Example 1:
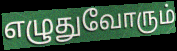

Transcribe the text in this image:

எழுதுவோரும்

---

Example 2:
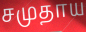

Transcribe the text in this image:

சமுதாய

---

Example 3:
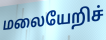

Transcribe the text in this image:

மலையேறிச்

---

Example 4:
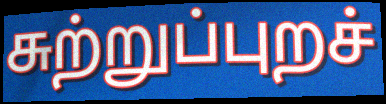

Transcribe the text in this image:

சுற்றுப்புறச்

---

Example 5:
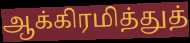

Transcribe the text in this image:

ஆக்கிரமித்துத்